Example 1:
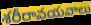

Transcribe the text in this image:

శరీరావయవాలు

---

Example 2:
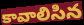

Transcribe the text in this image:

కావాలిసిన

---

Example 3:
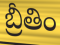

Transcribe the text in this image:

బ్రీతిం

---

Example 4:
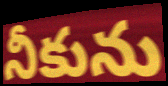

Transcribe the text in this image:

నీకును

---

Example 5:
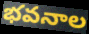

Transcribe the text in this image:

భవనాల